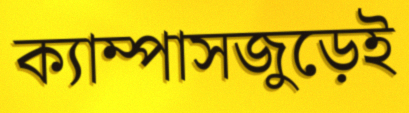
ক্যাম্পাসজুড়েই